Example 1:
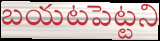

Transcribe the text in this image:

బయటపెట్టని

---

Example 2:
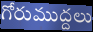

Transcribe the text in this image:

గోరుముద్దలు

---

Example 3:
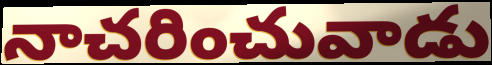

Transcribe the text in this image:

నాచరించువాడు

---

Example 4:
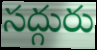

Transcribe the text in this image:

సద్గురు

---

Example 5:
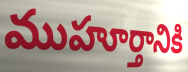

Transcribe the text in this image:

ముహూర్తానికి